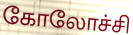
கோலோச்சி